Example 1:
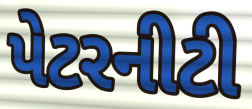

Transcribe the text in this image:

પેટરનીટી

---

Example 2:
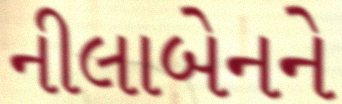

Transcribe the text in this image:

નીલાબેનને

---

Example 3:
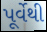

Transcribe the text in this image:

પૂર્વેથી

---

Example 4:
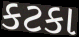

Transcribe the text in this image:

કટકા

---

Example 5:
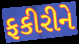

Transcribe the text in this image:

ફકીરીને